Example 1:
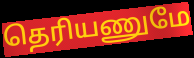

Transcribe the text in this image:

தெரியணுமே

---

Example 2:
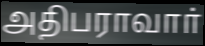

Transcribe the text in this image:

அதிபராவார்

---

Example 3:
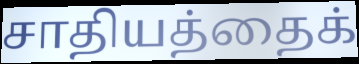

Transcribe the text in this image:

சாதியத்தைக்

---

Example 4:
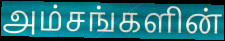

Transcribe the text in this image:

அம்சங்களின்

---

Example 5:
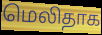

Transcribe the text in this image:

மெலிதாக